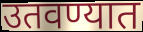
उतवण्यात